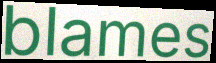
blames